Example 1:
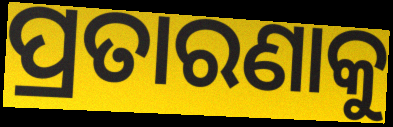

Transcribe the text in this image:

ପ୍ରତାରଣାକୁ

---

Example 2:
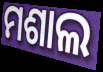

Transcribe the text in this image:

ମଶାଲ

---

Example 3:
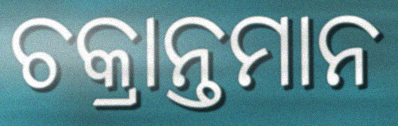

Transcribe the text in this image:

ଚକ୍ରାନ୍ତମାନ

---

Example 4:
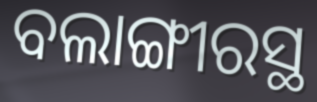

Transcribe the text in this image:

ବଲାଙ୍ଗୀରସ୍ଥ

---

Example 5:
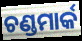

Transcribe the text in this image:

ଚଣ୍ଡମାର୍କ